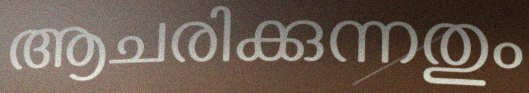
ആചരിക്കുന്നതും